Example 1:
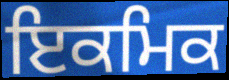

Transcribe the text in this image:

ਇਕਮਿਕ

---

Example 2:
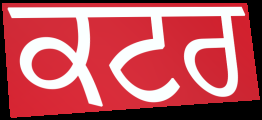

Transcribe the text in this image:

ਕਟਰ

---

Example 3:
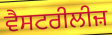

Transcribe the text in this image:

ਵੈਸਟਰੀਲੀਜ਼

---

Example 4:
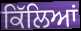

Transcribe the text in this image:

ਕਿੱਲਿਆਂ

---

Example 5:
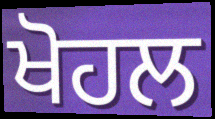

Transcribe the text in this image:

ਖੋਹਲ